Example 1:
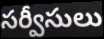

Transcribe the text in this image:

సర్వీసులు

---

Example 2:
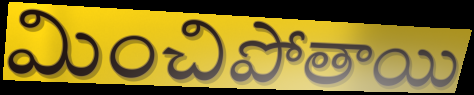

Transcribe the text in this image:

మించిపోతాయి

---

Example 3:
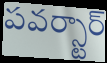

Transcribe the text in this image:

పవర్స్టార్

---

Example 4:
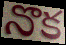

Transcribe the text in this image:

నొక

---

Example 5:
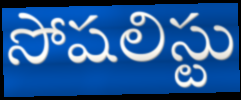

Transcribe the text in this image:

సోషలిస్టు